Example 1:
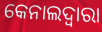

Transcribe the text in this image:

କେନାଲଦ୍ଵାରା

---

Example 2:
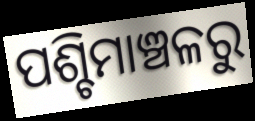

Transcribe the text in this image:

ପଶ୍ଚିମାଞ୍ଚଳରୁ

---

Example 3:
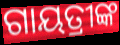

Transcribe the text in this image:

ଗାୟତ୍ରୀଙ୍କ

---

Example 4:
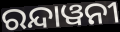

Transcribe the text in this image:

ରନ୍ଦାୱନୀ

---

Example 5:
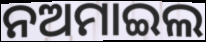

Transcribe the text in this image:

ନଅମାଇଲ